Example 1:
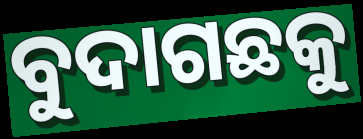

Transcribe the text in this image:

ବୁଦାଗଛକୁ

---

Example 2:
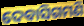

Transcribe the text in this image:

ଦେବାସିଗମଣି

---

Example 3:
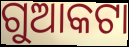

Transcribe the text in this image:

ଗୁଆକଟା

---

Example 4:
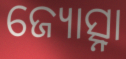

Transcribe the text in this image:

ଜ୍ୟୋତ୍ସ୍ନା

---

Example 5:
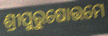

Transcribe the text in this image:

ଶ୍ରୀପୁରୁଷୋତ୍ତମେ